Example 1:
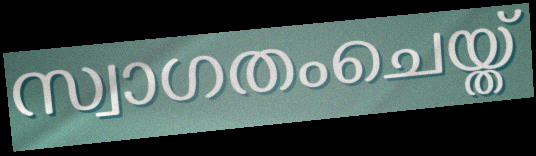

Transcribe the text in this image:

സ്വാഗതംചെയ്ത്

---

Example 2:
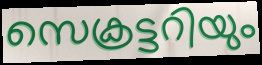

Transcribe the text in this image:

സെക്രട്ടറിയും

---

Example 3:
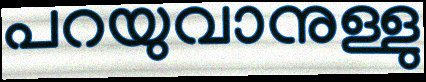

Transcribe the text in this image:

പറയുവാനുള്ളു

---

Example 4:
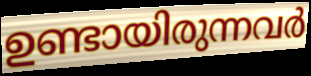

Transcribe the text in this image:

ഉണ്ടായിരുന്നവർ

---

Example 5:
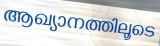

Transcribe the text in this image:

ആഖ്യാനത്തിലൂടെ